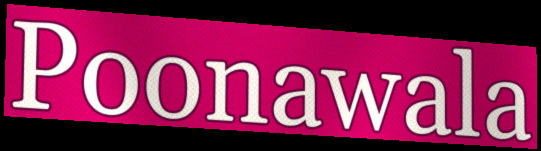
Poonawala